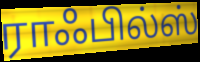
ராஃபில்ஸ்